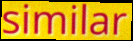
similar